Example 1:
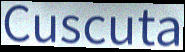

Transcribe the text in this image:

Cuscuta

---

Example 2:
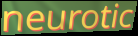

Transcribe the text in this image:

neurotic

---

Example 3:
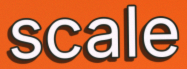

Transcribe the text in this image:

scale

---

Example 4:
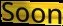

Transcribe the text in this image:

Soon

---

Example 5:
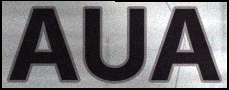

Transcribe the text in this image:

AUA